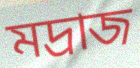
মদ্রাজ